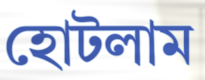
হোটলাম